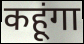
कहूंगा